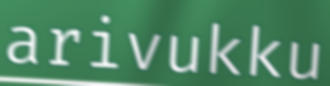
arivukku